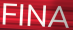
FINA